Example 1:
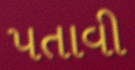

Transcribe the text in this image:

પતાવી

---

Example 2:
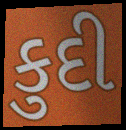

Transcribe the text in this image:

કુદી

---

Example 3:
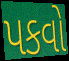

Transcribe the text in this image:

પકવો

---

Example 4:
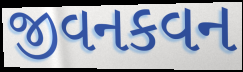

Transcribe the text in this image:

જીવનકવન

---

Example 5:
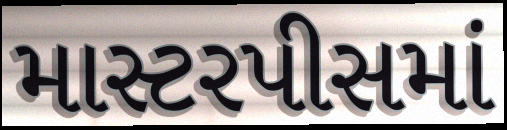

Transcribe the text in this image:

માસ્ટરપીસમાં